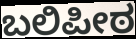
ಬಲಿಪೀಠ